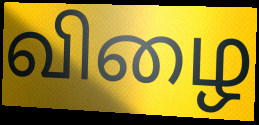
விழை